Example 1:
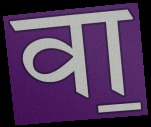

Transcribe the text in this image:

वा॒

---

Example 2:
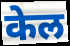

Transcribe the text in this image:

केल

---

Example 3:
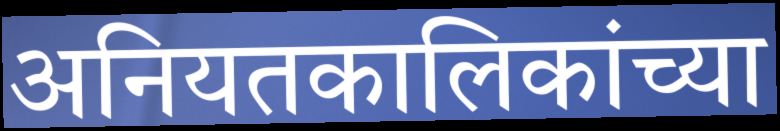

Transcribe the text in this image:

अनियतकालिकांच्या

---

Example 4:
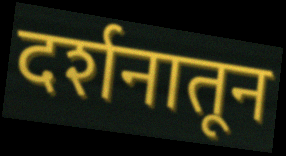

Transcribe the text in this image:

दर्शनातून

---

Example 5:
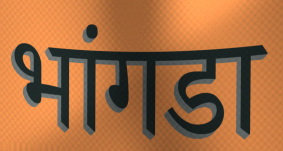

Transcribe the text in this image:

भांगडा